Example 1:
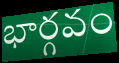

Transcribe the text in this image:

భార్గవం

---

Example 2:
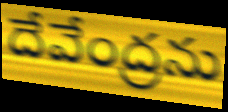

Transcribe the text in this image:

దేవేంద్రను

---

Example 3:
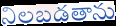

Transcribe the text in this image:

నిలబడతాను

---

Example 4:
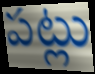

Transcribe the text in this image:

పట్లు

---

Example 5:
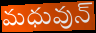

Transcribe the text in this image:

మధువున్